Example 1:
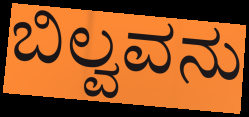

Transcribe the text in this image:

ಬಿಲ್ವವನು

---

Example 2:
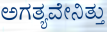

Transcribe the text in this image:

ಅಗತ್ಯವೇನಿತ್ತು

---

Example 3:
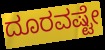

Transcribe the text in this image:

ದೂರವಷ್ಟೇ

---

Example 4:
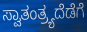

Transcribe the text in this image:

ಸ್ವಾತಂತ್ರ್ಯದೆಡೆಗೆ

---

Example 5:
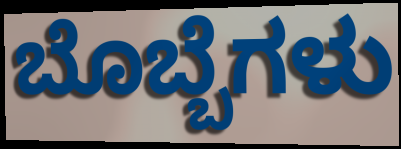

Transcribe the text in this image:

ಬೊಬ್ಬೆಗಳು